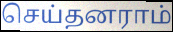
செய்தனராம்